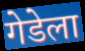
गेडेला